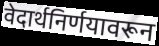
वेदार्थनिर्णयावरून